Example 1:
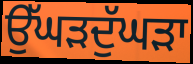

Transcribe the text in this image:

ਉੱਘੜਦੁੱਘੜਾ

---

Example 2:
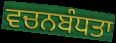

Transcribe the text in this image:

ਵਚਨਬੰਧਤਾ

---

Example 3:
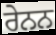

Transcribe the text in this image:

ਰੇਨਨ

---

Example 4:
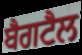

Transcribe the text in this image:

ਬੈਗਟੈਲ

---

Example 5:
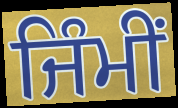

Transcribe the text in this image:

ਜਿੰਮੀਂ